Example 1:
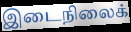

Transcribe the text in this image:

இடைநிலைக்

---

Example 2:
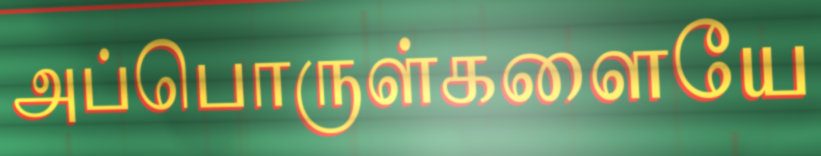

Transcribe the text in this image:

அப்பொருள்களையே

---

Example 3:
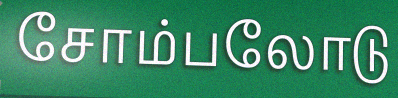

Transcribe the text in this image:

சோம்பலோடு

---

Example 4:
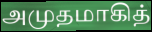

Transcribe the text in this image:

அமுதமாகித்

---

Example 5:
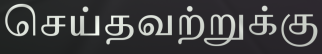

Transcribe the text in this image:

செய்தவற்றுக்கு